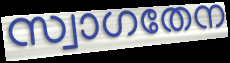
സ്വാഗതേന